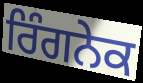
ਰਿੰਗਨੇਕ